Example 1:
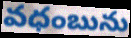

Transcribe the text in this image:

వధంబును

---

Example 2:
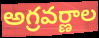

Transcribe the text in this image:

అగ్రవర్ణాల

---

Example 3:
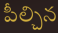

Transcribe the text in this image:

పీల్చిన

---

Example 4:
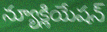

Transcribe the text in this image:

న్యూక్లియేషన్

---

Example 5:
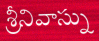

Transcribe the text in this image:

శ్రీనివాస్ను